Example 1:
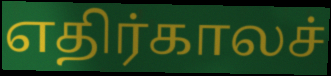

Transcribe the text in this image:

எதிர்காலச்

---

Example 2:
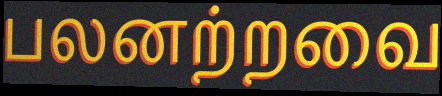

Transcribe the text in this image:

பலனற்றவை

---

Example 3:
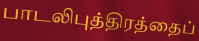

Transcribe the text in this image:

பாடலிபுத்திரத்தைப்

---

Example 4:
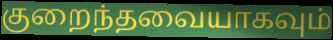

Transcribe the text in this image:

குறைந்தவையாகவும்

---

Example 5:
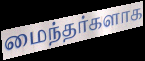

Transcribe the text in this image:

மைந்தர்களாக